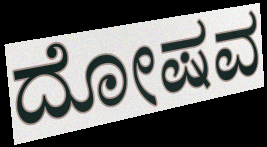
ದೋಷವ